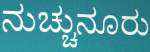
ನುಚ್ಚುನೂರು